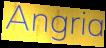
Angria